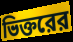
ভিক্তরের